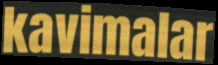
kavimalar